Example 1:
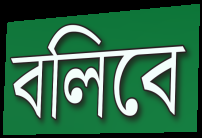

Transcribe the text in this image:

বলিবে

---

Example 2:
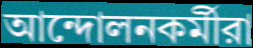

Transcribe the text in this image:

আন্দোলনকর্মীরা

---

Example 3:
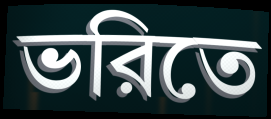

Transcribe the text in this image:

ভরিতে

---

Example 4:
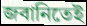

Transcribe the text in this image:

জবানিতেই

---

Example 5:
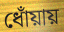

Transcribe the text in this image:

ধোঁয়ায়